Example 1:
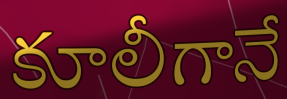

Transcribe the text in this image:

కూలీగానే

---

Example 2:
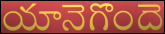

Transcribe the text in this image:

యానెగొందె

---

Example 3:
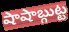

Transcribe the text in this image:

షాషాబ్గుట్ట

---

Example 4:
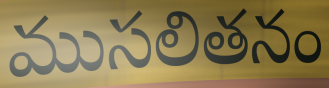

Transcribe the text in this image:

ముసలితనం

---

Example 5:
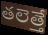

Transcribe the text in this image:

తలెత్తే